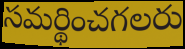
సమర్థించగలరు